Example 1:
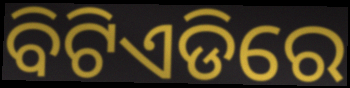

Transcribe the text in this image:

ବିଟିଏଡିରେ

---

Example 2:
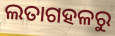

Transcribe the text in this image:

ଲତାଗହଳରୁ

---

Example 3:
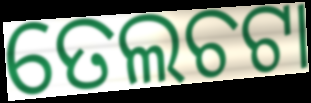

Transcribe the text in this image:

ତେଲଚଟା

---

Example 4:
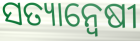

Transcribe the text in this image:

ସତ୍ୟାନ୍ଵେଷୀ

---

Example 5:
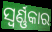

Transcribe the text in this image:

ସ୍ୱର୍ଣ୍ଣକାର